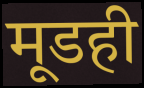
मूडही